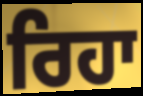
ਰਿਹਾ